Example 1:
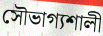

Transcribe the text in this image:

সৌভাগ্যশালী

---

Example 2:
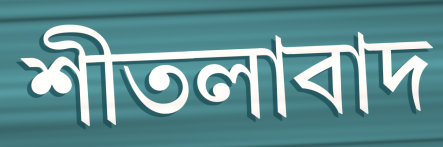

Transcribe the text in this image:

শীতলাবাদ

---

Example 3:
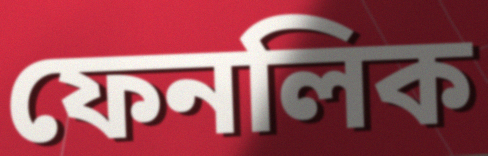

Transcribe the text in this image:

ফেনলিক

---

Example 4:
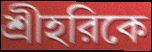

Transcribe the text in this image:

শ্রীহরিকে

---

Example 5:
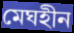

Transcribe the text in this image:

মেঘহীন